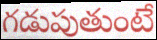
గడుపుతుంటే